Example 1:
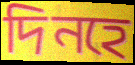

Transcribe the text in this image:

দিনহে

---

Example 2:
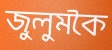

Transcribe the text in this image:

জুলুমকৈ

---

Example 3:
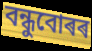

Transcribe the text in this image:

বন্ধুবোৰৰ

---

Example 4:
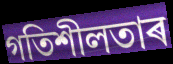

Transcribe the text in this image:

গতিশীলতাৰ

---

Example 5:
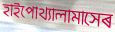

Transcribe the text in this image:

হাইপোথ্যালামাসেৰ